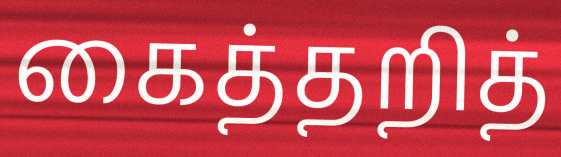
கைத்தறித்